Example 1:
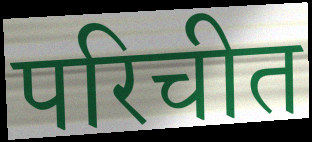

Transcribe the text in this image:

परिचीत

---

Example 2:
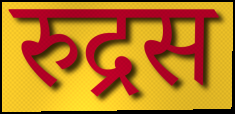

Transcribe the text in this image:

रुद्रस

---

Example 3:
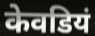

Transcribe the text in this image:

केवडियं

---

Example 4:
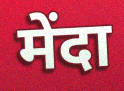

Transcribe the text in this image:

मेंदा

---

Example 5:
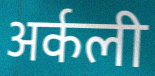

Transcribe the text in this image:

अर्कली